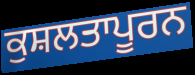
ਕੁਸ਼ਲਤਾਪੂਰਨ